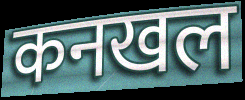
कनखल